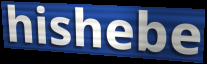
hishebe